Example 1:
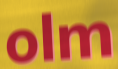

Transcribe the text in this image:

olm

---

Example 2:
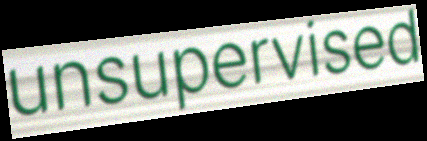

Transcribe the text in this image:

unsupervised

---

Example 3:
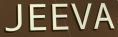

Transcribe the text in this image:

JEEVA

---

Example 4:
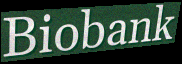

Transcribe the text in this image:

Biobank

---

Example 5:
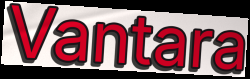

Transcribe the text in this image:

Vantara